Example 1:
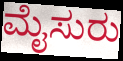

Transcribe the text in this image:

ಮೈಸುರು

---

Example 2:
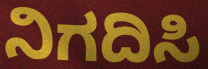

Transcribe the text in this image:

ನಿಗದಿಸಿ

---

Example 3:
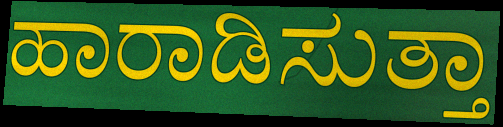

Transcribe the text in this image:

ಹಾರಾಡಿಸುತ್ತಾ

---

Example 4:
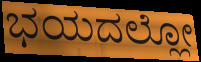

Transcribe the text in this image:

ಭಯದಲ್ಲೋ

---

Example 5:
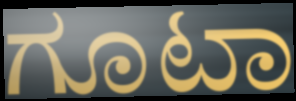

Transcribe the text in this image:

ಗೂಟಾ